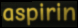
aspirin